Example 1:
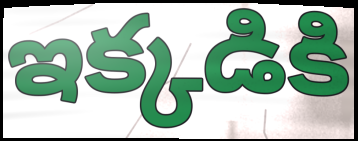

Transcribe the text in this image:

ఇక్కడికి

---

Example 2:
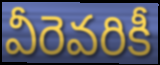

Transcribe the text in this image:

వీరెవరికీ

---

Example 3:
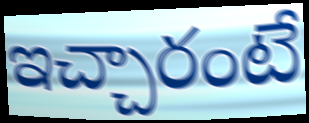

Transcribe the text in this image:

ఇచ్చారంటే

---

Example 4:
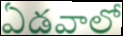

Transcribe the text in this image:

ఏడవాలో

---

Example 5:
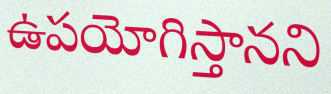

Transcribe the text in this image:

ఉపయోగిస్తానని